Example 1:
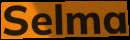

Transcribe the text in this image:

Selma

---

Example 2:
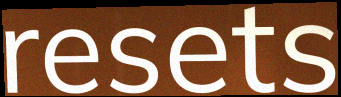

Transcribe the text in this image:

resets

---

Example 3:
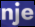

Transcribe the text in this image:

nje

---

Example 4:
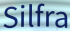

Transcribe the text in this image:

Silfra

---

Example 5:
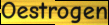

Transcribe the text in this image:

Oestrogen